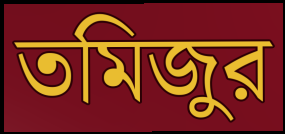
তমিজুর